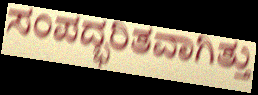
ಸಂಪದ್ಭರಿತವಾಗಿತ್ತು